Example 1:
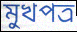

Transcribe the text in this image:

মুখপত্ৰ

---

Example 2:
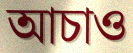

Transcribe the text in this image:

আচাও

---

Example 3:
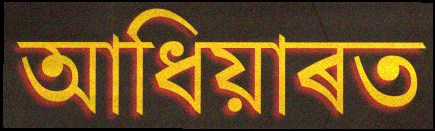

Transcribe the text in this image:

আধিয়াৰত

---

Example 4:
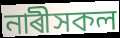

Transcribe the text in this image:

নাৰীসকল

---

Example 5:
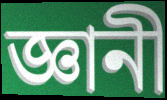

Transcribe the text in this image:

জ্ঞানী